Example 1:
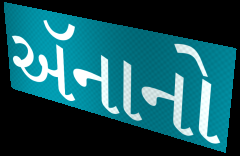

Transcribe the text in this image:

ઍનાનો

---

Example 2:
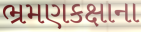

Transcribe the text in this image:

ભ્રમણકક્ષાના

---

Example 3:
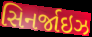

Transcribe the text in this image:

સિનર્જાઇઝ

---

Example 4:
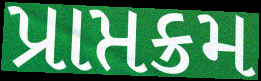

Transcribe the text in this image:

પ્રાપ્તક્રમ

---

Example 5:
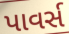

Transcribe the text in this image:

પાવર્સ